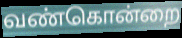
வண்கொன்றை